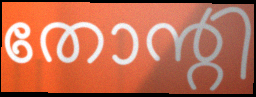
തോന്റി